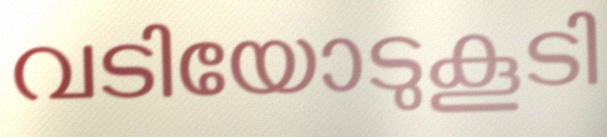
വടിയോടുകൂടി